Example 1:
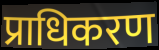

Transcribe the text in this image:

प्राधिकरण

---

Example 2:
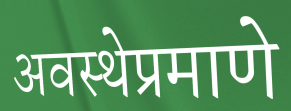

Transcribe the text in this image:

अवस्थेप्रमाणे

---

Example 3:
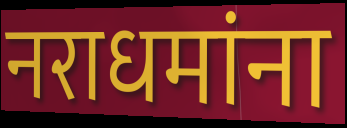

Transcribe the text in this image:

नराधमांना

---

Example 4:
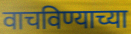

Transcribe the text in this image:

वाचविण्याच्या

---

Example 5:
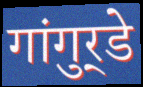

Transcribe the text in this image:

गांगुर्डे